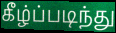
கீழ்ப்படிந்து